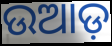
ଉଆଡ଼